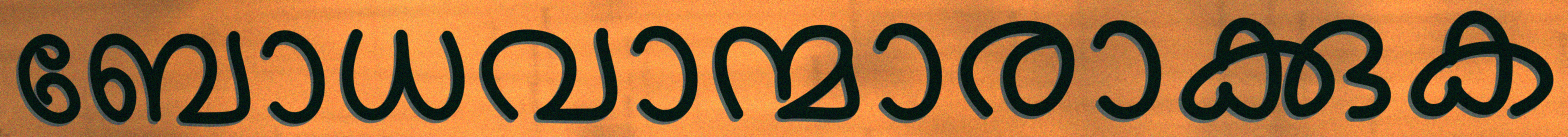
ബോധവാന്മാരാക്കുക